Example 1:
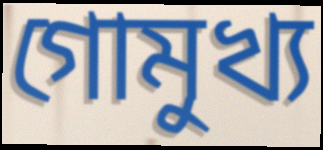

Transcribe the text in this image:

গোমুখ্য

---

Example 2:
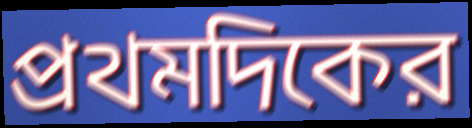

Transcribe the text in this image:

প্রথমদিকের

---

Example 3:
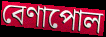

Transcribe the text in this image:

বেণাপোল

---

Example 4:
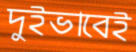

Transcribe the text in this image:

দুইভাবেই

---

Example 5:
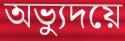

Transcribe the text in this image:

অভ্যুদয়ে